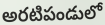
అరటిపండులో